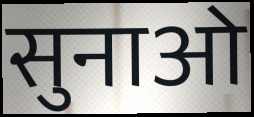
सुनाओ